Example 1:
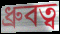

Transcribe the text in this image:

ধ্রুবত্ব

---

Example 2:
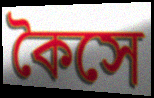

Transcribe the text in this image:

কৈসে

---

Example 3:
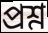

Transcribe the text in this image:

প্রশ্ন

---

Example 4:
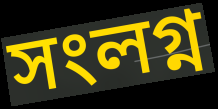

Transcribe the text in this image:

সংলগ্ন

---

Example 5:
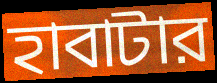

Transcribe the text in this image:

হাবাটার